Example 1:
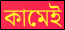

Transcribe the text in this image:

কামেই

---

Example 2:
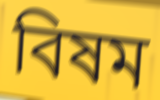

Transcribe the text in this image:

বিষম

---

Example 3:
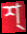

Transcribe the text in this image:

শ্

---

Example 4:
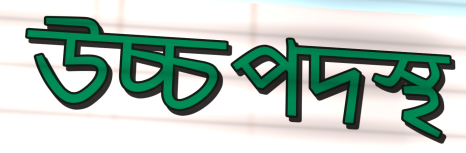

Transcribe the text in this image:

উচ্চপদস্থ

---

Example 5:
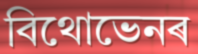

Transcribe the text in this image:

বিথোভেনৰ